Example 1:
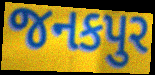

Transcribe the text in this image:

જનકપુર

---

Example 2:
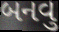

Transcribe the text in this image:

બનવુ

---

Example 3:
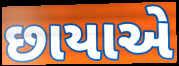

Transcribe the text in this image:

છાયાએ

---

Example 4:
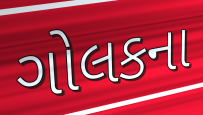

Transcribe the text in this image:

ગોલકના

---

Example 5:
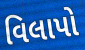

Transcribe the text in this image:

વિલાપો